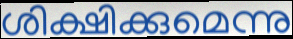
ശിക്ഷിക്കുമെന്നു